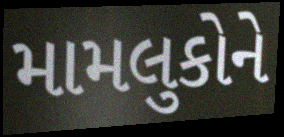
મામલુકોને